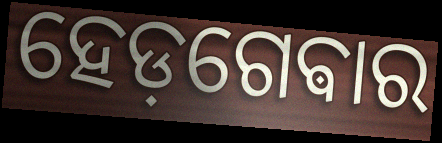
ହେଡ଼ଗେଵାର